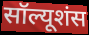
सॉल्यूशंस